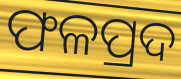
ଫଳପ୍ରଦ